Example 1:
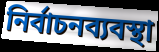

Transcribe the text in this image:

নির্বাচনব্যবস্থা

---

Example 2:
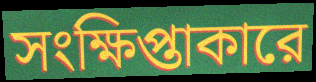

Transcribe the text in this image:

সংক্ষিপ্তাকারে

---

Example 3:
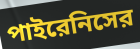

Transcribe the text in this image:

পাইরেনিসের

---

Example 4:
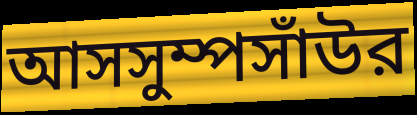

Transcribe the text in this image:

আসসুম্পসাঁউর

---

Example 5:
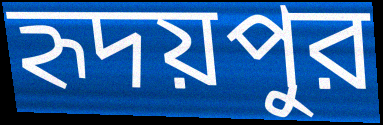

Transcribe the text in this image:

হৃদয়পুর